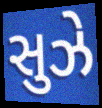
સુઝે